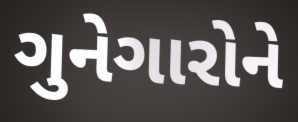
ગુનેગારોને